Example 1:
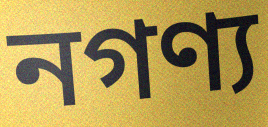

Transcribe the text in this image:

নগণ্য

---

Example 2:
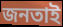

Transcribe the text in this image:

জনতাই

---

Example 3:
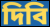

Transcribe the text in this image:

দিবি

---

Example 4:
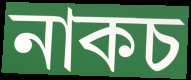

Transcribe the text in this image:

নাকচ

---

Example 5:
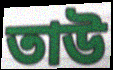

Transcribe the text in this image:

তাউ